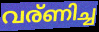
വര്ണിച്ച